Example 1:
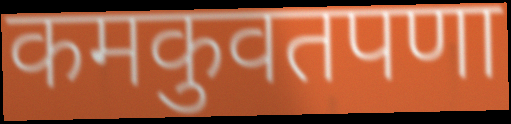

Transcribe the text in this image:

कमकुवतपणा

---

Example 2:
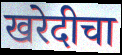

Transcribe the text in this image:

खरेदीचा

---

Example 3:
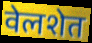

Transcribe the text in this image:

वेलशेत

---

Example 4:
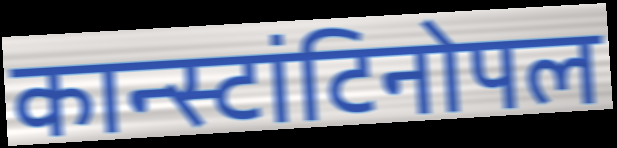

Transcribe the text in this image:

कान्स्टांटिनोपल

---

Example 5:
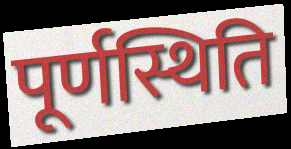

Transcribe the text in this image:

पूर्णस्थिति